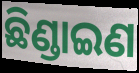
ଛିଣ୍ଡାଇଣ